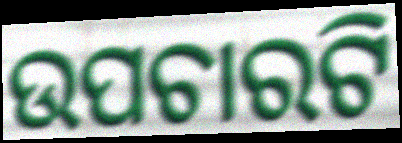
ଉପଚାରଟି